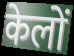
केलों